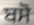
ਬਸੋ